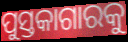
ପୁସ୍ତକାଗାରକୁ